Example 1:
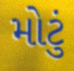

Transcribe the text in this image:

મોટું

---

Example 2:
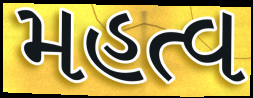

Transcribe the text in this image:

મહત્વ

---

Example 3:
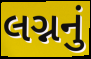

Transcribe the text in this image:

લગ્નનું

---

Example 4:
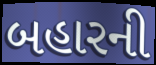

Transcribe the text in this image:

બહારની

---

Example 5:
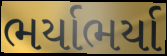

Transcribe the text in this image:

ભર્યાભર્યા